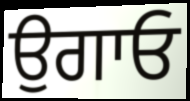
ਉਗਾਓ